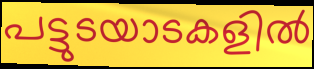
പട്ടുടയാടകളിൽ